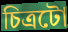
চিত্ৰটো